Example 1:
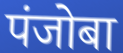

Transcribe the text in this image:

पंजोबा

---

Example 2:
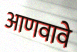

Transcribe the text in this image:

आणवावे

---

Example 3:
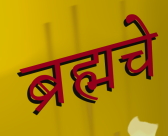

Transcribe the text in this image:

ब्रह्मचे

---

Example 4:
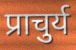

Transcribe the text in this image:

प्राचुर्य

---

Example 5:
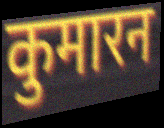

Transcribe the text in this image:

कुमारन